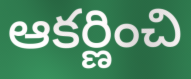
ఆకర్ణించి